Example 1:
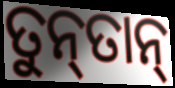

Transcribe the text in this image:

ତୁନ୍‍ତାନ୍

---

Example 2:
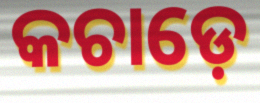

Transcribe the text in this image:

କଚାଡ଼େ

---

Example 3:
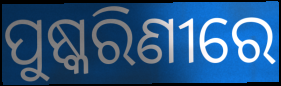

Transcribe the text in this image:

ପୁଷ୍କରିଣୀରେ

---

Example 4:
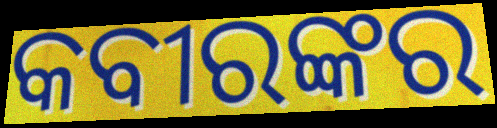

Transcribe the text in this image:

କବୀରଙ୍କର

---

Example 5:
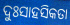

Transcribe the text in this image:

ଦୁଃସାହସିକତା